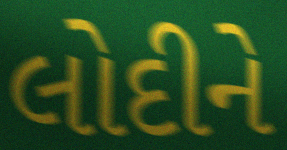
લોદીને